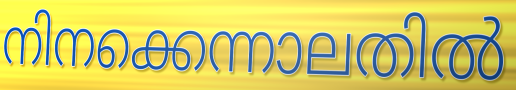
നിനക്കെന്നാലതിൽ